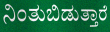
ನಿಂತುಬಿಡುತ್ತಾರೆ